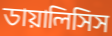
ডায়ালিসিস